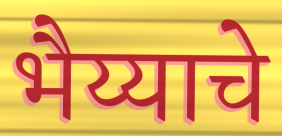
भैय्याचे